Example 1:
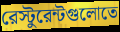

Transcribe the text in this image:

রেস্টুরেন্টগুলোতে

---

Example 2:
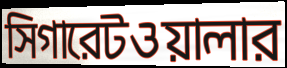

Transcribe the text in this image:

সিগারেটওয়ালার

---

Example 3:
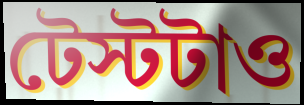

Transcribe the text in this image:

টেস্টটাও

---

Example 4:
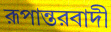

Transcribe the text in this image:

রূপান্তরবাদী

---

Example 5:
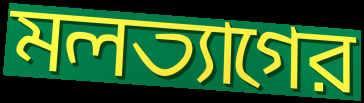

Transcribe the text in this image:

মলত্যাগের